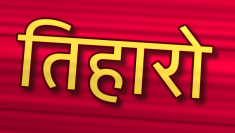
तिहारो